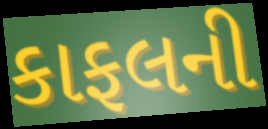
કાફલની